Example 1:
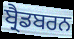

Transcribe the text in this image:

ਬ੍ਰੈਡਬਰਨ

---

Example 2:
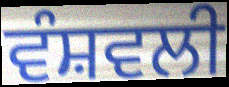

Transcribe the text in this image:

ਵੰਸ਼ਵਲੀ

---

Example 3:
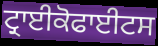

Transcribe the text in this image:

ਟ੍ਰਾਈਕੋਫਾਈਟਸ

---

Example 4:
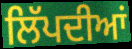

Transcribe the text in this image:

ਲਿੱਪਦੀਆਂ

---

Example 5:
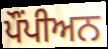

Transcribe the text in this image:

ਪੌਂਪੀਅਨ